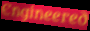
Engineered